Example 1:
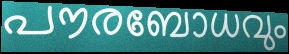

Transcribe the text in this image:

പൗരബോധവും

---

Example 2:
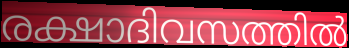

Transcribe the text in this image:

രക്ഷാദിവസത്തിൽ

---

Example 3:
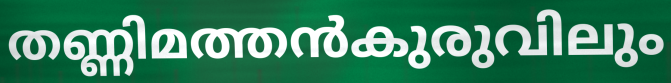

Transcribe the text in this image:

തണ്ണിമത്തൻകുരുവിലും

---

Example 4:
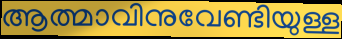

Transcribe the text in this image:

ആത്മാവിനുവേണ്ടിയുള്ള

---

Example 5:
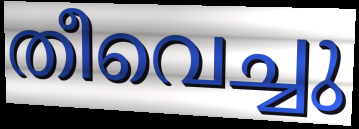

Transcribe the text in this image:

തീവെച്ചു